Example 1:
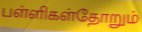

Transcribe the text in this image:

பள்ளிகள்தோறும்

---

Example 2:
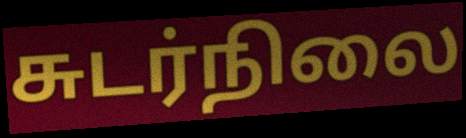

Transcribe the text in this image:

சுடர்நிலை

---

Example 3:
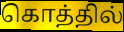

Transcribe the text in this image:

கொத்தில்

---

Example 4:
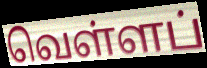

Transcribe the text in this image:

வெள்ளப்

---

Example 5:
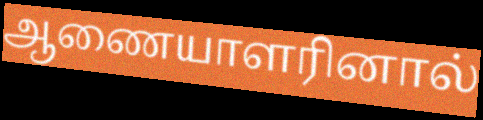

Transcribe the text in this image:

ஆணையாளரினால்